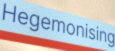
Hegemonising